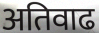
अतिवाढ